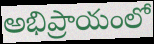
అభిప్రాయంలో